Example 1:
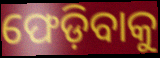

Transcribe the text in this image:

ଫେଡ଼ିବାକୁ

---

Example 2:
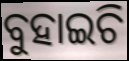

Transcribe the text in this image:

ବୁହାଇଚି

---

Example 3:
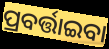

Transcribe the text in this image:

ପ୍ରବର୍ତ୍ତାଇବା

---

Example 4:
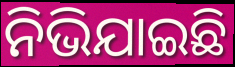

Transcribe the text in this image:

ନିଭିଯାଇଛି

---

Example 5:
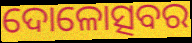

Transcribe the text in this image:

ଦୋଳୋତ୍ସବର